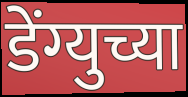
डेंग्युच्या